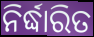
ନିର୍ଦ୍ଧାରିତ